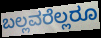
ಬಲ್ಲವರೆಲ್ಲರೂ